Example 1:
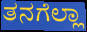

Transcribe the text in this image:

ತನಗೆಲ್ಲಾ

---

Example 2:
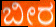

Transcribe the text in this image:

ಬೀರ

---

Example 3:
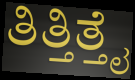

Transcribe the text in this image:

ತಿತ್ತಿತ್ತೈ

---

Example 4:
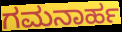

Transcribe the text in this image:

ಗಮನಾರ್ಹ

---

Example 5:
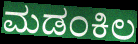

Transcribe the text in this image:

ಮಡಂಕಿಲ